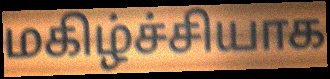
மகிழ்ச்சியாக